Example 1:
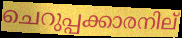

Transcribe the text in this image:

ചെറുപ്പക്കാരനില്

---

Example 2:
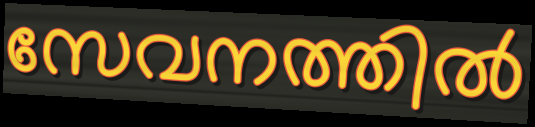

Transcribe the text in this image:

സേവനത്തിൽ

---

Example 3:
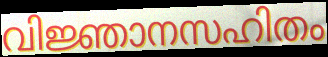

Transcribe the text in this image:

വിജ്ഞാനസഹിതം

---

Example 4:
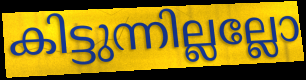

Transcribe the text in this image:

കിട്ടുന്നില്ലല്ലോ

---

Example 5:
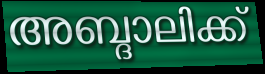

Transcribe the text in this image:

അബ്ദാലിക്ക്